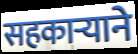
सहकाऱ्याने